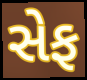
સેફ